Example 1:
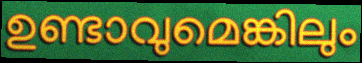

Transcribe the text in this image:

ഉണ്ടാവുമെങ്കിലും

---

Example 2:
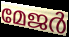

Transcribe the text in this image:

മേജർ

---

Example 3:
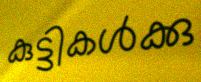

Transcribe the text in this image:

കുട്ടികൾക്കു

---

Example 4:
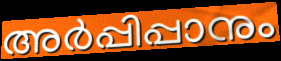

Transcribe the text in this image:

അർപ്പിപ്പാനും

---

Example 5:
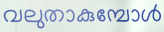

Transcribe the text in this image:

വലുതാകുമ്പോൾ